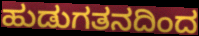
ಹುಡುಗತನದಿಂದ